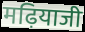
मढ़ियाजी